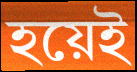
হয়েই